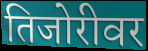
तिजोरीवर